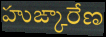
హుఙ్కారేణ